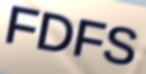
FDFS